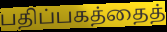
பதிப்பகத்தைத்